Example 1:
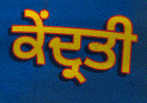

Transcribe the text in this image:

ਕੇਂਦ੍ਰਤੀ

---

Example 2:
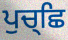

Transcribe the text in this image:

ਪੁਚ੍ਛਿ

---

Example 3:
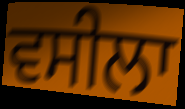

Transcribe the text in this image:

ਵਸੀਲਾ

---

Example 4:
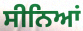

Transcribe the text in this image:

ਸੀਨਿਆਂ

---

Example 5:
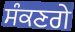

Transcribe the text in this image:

ਸੰਕਣਗੇ